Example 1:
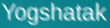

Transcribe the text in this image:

Yogshatak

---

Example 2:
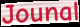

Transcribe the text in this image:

Jounal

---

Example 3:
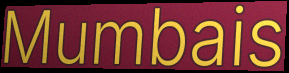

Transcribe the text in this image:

Mumbais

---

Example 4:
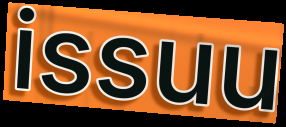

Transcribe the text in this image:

issuu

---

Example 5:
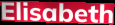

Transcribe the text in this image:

Elisabeth